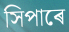
সিপাৰে